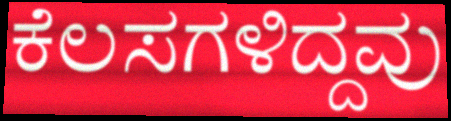
ಕೆಲಸಗಳಿದ್ದವು